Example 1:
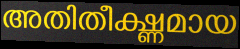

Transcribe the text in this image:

അതിതീക്ഷ്ണമായ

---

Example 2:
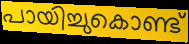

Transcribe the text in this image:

പായിച്ചുകൊണ്ട്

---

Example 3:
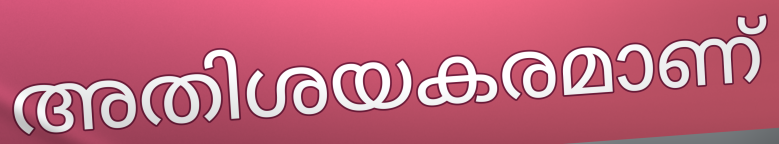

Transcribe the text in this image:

അതിശയകരമാണ്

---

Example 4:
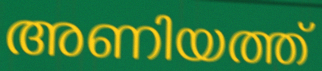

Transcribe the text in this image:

അണിയത്ത്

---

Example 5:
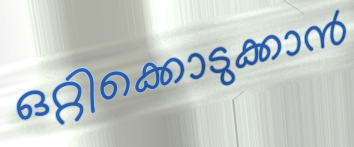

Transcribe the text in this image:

ഒറ്റിക്കൊടുക്കാൻ